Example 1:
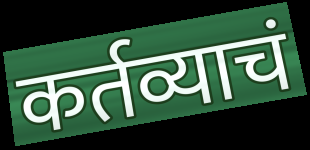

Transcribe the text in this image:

कर्तव्याचं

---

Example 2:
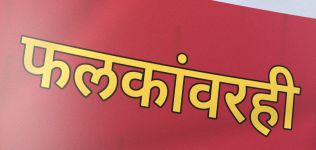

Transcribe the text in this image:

फलकांवरही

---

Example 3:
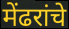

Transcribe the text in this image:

मेंढरांचे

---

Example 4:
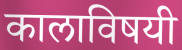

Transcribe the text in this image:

कालाविषयी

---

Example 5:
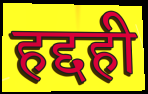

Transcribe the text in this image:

हद्दही